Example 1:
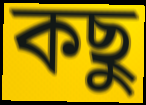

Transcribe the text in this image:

কছু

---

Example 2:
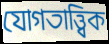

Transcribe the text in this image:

যোগতাত্ত্বিক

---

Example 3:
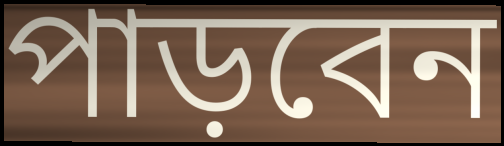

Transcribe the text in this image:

পাড়বেন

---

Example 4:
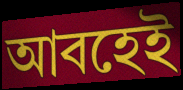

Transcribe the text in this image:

আবহেই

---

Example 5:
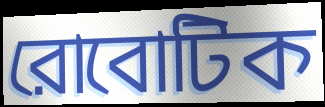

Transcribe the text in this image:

রোবোটিক